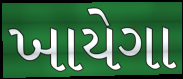
ખાયેગા